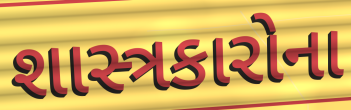
શાસ્ત્રકારોના